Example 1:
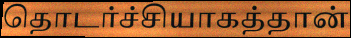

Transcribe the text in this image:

தொடர்ச்சியாகத்தான்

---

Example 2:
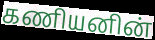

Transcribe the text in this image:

கணியனின்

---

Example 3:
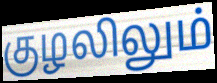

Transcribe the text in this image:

குழலிலும்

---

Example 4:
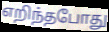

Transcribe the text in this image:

எறிந்தபோது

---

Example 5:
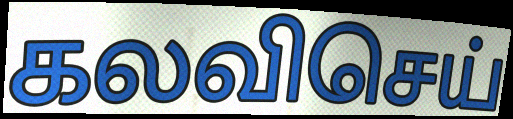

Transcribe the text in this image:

கலவிசெய்